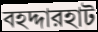
বহদ্দারহাট